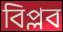
বিপ্লব